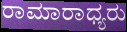
ರಾಮಾರಾಧ್ಯರು